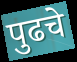
पुढचे